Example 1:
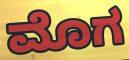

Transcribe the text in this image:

ಮೊಗ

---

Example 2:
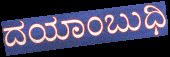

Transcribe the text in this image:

ದಯಾಂಬುಧಿ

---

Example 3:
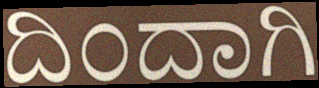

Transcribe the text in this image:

ದಿಂದಾಗಿ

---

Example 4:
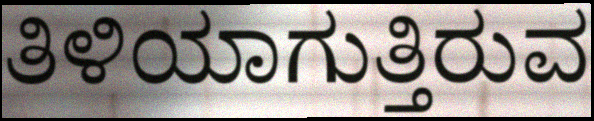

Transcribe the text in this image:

ತಿಳಿಯಾಗುತ್ತಿರುವ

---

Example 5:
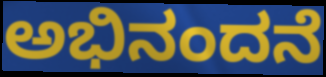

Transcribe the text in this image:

ಅಭಿನಂದನೆ